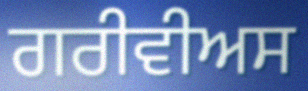
ਗਰੀਵੀਅਸ